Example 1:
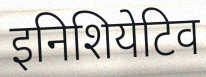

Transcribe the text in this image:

इनिशियेटिव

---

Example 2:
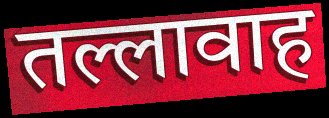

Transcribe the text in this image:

तल्लावाह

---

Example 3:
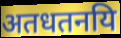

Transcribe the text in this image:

अतधतनयि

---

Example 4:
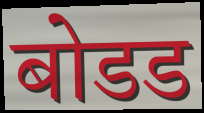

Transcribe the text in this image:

बोडड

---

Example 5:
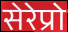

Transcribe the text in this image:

सेरेप्रो